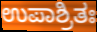
ಉಪಾಶ್ರಿತಃ